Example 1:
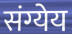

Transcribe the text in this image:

संग्येय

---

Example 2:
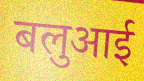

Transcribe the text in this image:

बलुआई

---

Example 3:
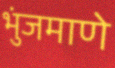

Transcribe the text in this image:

भुंजमाणे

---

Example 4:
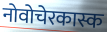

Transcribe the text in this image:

नोवोचेरकास्क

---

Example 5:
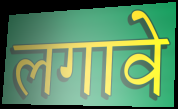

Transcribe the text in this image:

लगावे